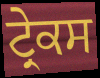
ਟ੍ਰੇਕਸ